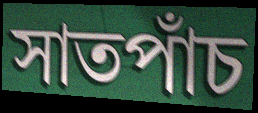
সাতপাঁচ